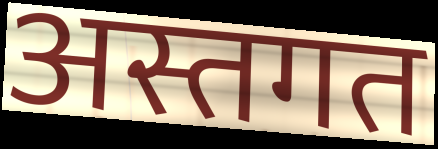
अस्तगत